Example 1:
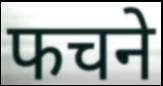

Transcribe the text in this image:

फचने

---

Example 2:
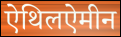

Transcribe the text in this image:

ऐथिलऐमीन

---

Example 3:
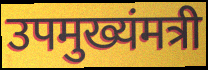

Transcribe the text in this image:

उपमुख्यंमत्री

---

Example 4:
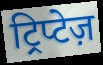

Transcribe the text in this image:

ट्रिप्टेज़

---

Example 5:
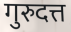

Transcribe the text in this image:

गुरुदत्त